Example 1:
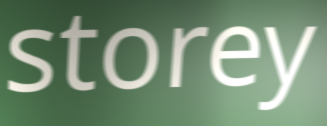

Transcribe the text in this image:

storey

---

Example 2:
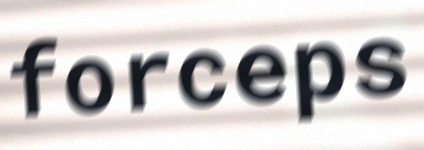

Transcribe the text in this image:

forceps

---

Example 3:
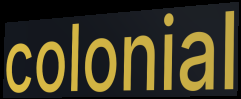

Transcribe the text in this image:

colonial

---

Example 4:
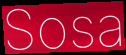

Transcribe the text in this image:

Sosa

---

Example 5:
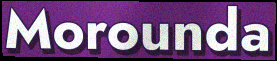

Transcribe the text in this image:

Morounda